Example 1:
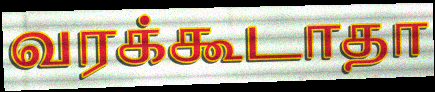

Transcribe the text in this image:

வரக்கூடாதா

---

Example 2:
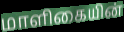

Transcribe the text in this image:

மாளிகையின்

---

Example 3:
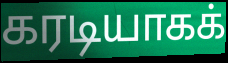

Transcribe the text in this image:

கரடியாகக்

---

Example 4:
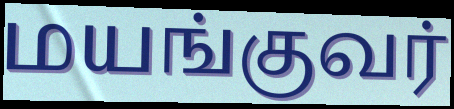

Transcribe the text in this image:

மயங்குவர்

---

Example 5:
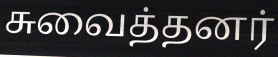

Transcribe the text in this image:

சுவைத்தனர்